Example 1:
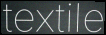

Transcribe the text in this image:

textile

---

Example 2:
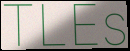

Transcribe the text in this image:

TLEs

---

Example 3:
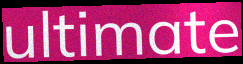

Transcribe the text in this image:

ultimate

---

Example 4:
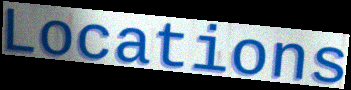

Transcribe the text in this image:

Locations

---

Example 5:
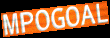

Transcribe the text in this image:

MPOGOAL